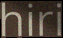
hiri